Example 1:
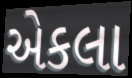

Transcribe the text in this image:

એકલા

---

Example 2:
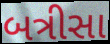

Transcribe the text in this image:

બત્રીસા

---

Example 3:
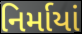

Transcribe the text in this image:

નિર્માયાં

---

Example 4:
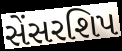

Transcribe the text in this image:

સેંસરશિપ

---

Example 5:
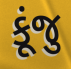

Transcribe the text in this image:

કૂંજુ